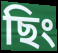
ছিং